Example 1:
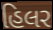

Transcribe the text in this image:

હિલર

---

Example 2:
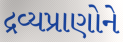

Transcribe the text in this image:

દ્રવ્યપ્રાણોને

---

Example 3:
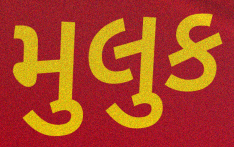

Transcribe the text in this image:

મુલુક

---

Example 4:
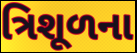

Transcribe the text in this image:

ત્રિશૂળના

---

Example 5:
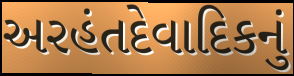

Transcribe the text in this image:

અરહંતદેવાદિકનું